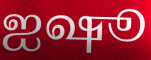
ஐஷூ